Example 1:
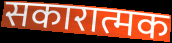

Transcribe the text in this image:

सकारात्‍मक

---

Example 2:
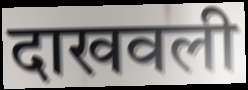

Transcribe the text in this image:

दाखवली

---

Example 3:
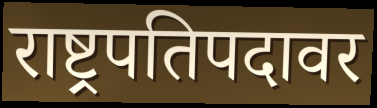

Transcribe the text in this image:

राष्ट्रपतिपदावर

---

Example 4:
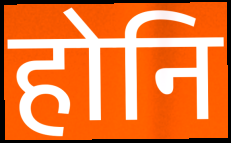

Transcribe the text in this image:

होनि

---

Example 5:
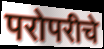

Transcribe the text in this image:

परोपरीचे